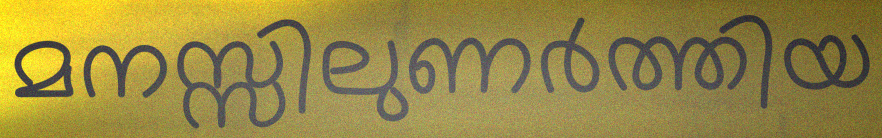
മനസ്സിലുണർത്തിയ